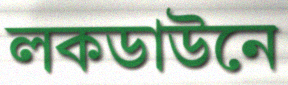
লকডাউনে